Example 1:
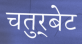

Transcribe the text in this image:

चतुर्बेट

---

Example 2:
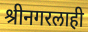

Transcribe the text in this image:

श्रीनगरलाही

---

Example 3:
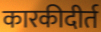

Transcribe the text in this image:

कारकीदीर्त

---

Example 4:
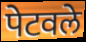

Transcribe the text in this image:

पेटवले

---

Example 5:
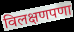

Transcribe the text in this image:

विलक्षणपणा